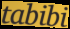
tabibi